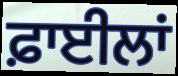
ਫ਼ਾਈਲਾਂ